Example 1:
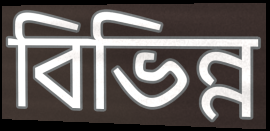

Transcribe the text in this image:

বিভিন্ন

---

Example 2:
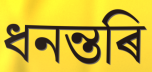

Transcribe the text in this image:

ধনন্তৰি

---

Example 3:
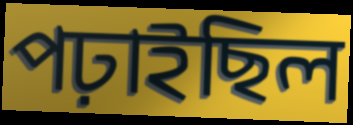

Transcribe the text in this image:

পঢ়াইছিল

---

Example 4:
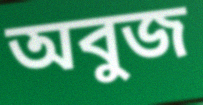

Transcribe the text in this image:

অবুজ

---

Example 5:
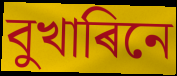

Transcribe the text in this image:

বুখাৰিনে